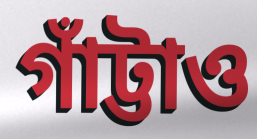
গাঁট্টাও